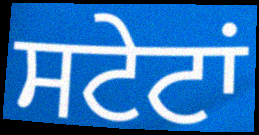
ਸਟੇਟਾਂ